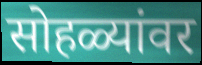
सोहळ्यांवर